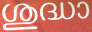
ശുദ്ധാ